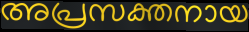
അപ്രസക്തനായ